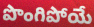
పొంగిపోయే